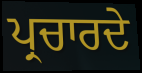
ਪ੍ਰਚਾਰਦੇ